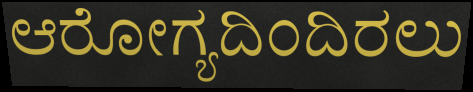
ಆರೋಗ್ಯದಿಂದಿರಲು